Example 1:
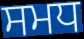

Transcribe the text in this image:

ਸਮਧ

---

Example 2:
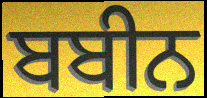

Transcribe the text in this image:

ਬਬੀਨ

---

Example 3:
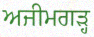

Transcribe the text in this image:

ਅਜੀਮਗੜ੍ਹ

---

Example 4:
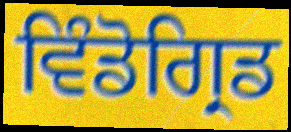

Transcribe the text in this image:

ਵਿੰਡੋਗ੍ਰਿਡ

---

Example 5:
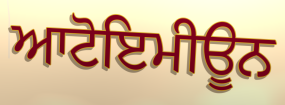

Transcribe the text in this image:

ਆਟੋਇਮੀਊਨ